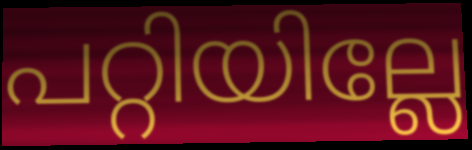
പറ്റിയില്ലേ